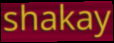
shakay